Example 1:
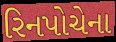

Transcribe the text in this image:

રિનપોચેના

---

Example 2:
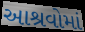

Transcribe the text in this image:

આશ્રવોમાં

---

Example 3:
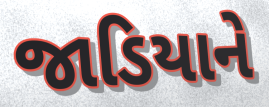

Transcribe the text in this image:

જાડિયાને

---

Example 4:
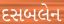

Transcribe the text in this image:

દસબલેન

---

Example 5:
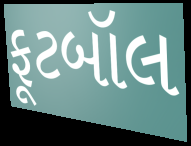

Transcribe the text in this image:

ફૂટબૉલ